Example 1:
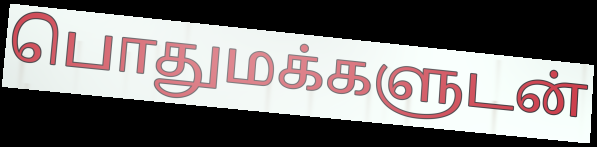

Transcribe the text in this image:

பொதுமக்களுடன்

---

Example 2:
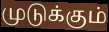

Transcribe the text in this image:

முடுக்கும்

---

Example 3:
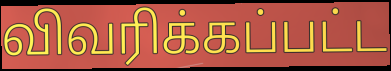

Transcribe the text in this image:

விவரிக்கப்பட்ட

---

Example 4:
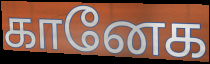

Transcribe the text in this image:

கானேக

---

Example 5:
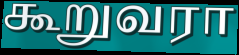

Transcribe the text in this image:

கூறுவரா